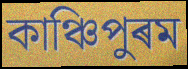
কাঞ্চিপুৰম